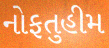
નોફતુહીમ